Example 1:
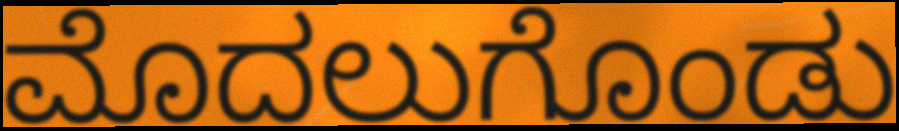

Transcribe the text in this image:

ಮೊದಲುಗೊಂಡು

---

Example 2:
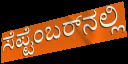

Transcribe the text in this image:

ಸೆಪ್ಟೆಂಬರ್‌ನಲ್ಲಿ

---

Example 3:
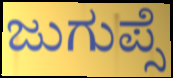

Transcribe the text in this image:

ಜುಗುಪ್ಸೆ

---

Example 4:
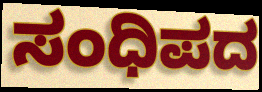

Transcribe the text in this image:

ಸಂಧಿಪದ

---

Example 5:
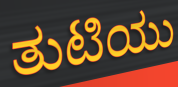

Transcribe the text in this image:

ತುಟಿಯು